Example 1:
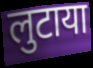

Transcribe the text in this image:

लुटाया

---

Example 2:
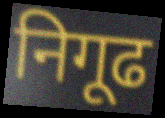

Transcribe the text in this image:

निगूढ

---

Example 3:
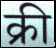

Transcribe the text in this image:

क्री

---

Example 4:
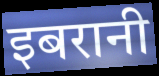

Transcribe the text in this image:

इबरानी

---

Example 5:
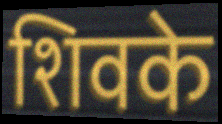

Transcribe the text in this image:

शिवके